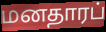
மனதாரப்